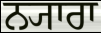
ਨ੍ਯਾਰਾ